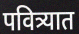
पवित्र्यात